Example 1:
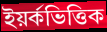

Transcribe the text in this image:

ইয়র্কভিত্তিক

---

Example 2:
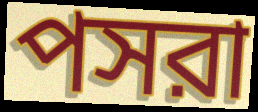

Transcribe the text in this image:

পসরা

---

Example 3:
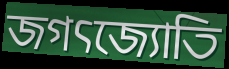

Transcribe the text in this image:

জগৎজ্যোতি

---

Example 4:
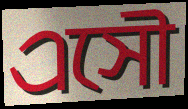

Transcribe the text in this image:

এসৌ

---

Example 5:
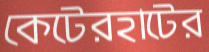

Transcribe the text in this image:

কেটেরহাটের